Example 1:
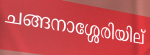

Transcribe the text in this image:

ചങ്ങനാശ്ശേരിയില്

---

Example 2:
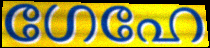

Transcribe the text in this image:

ഗേഹേ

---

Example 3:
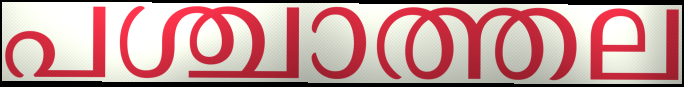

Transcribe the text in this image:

പശ്ചാത്തല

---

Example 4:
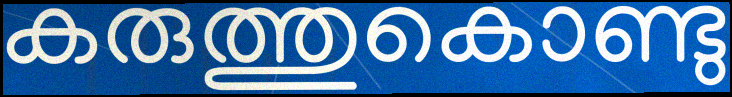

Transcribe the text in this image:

കരുത്തുകൊണ്ടു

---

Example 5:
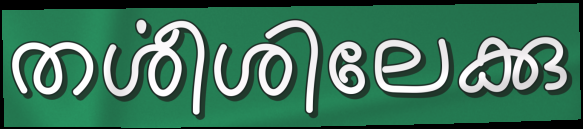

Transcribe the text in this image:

തൎശീശിലേക്കു